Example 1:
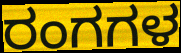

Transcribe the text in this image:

ರಂಗಗಳ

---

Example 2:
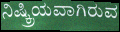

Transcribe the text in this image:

ನಿಷ್ಕ್ರಿಯವಾಗಿರುವ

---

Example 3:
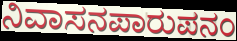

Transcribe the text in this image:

ನಿವಾಸನಪಾರುಪನಂ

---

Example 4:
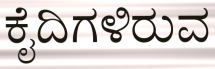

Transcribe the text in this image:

ಕೈದಿಗಳಿರುವ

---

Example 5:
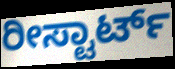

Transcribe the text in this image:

ರೀಸ್ಟಾರ್ಟ್